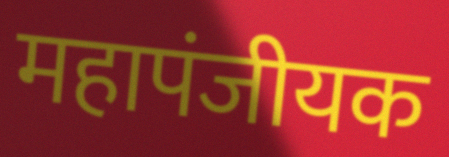
महापंजीयक